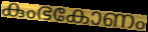
കുംഭകോണം